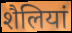
शैलियां